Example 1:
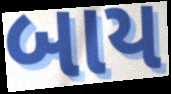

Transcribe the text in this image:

બાય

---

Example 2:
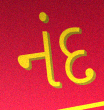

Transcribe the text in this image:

નંદ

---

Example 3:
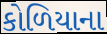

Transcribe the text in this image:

કોળિયાના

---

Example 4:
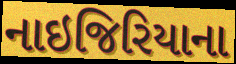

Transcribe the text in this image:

નાઇજિરિયાના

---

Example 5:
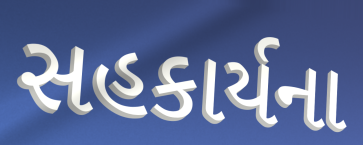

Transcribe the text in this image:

સહકાર્યના